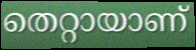
തെറ്റായാണ്